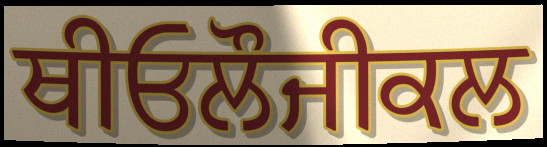
ਥੀਓਲੌਜੀਕਲ